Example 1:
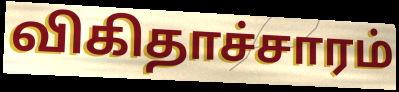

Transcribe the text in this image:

விகிதாச்சாரம்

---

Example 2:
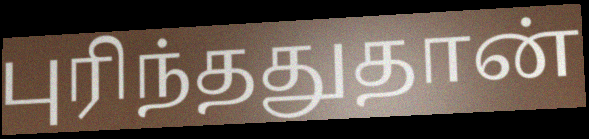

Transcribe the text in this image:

புரிந்ததுதான்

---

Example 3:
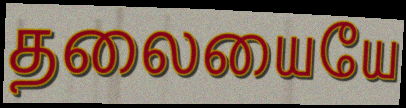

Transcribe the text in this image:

தலையையே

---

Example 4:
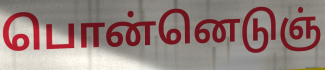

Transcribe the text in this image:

பொன்னெடுஞ்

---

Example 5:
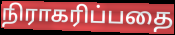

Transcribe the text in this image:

நிராகரிப்பதை